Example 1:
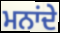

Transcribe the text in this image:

ਮਨਾਂਦੇ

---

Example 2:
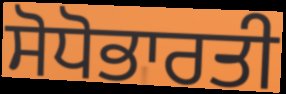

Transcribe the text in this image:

ਸੋਧੋਭਾਰਤੀ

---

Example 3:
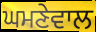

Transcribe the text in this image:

ਘਮਣੇਵਾਲ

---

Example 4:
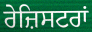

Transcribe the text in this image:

ਰੇਜ਼ਿਸਟਰਾਂ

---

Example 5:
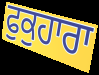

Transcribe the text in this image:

ਫੁਕੁਹਾਰਾ